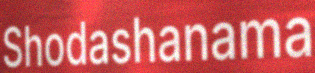
Shodashanama